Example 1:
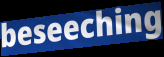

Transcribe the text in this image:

beseeching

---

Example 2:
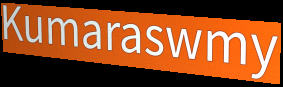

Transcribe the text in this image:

Kumaraswmy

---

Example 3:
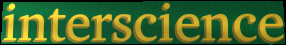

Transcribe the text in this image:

interscience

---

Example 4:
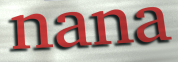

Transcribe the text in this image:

nana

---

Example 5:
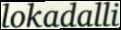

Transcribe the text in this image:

lokadalli